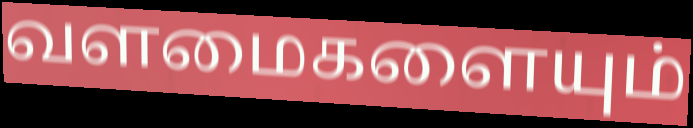
வளமைகளையும்